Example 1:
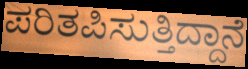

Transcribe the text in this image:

ಪರಿತಪಿಸುತ್ತಿದ್ದಾನೆ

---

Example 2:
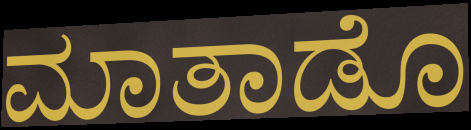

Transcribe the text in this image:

ಮಾತಾಡೊ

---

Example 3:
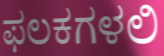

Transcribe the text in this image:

ಫಲಕಗಳಲಿ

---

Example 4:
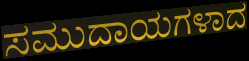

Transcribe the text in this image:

ಸಮುದಾಯಗಳಾದ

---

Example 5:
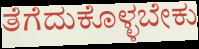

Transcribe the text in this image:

ತೆಗೆದುಕೊಳ್ಳಬೇಕು